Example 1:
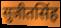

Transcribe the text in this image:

सुजीतसिंह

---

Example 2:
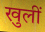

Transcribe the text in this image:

खुलीं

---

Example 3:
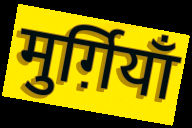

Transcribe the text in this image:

मुर्ग़ियाँ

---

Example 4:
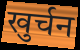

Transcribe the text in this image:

खुर्चन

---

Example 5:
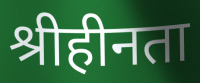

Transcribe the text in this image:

श्रीहीनता